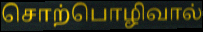
சொற்பொழிவால்